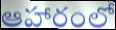
ఆహారంలో